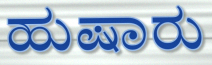
ಹುಷಾರು